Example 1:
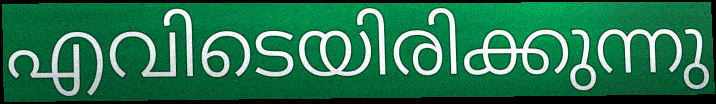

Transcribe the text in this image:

എവിടെയിരിക്കുന്നു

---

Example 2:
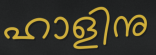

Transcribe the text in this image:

ഹാളിനു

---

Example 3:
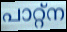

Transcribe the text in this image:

പാറ്റ്ന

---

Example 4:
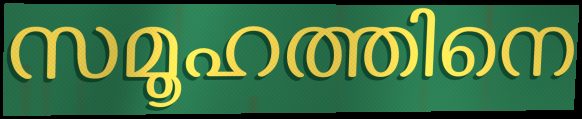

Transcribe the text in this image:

സമൂഹത്തിനെ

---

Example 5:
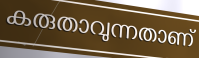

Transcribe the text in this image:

കരുതാവുന്നതാണ്